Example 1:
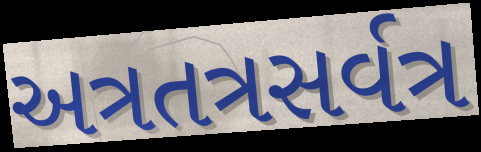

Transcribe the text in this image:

અત્રતત્રસર્વત્ર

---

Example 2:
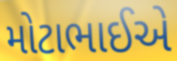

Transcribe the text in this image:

મોટાભાઈએ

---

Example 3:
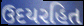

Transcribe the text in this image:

ઉદયરહિત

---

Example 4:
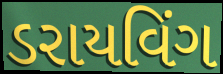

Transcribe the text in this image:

ડરાયવિંગ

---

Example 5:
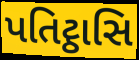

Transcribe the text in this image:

પતિટ્ઠાસિ